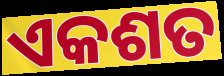
ଏକଶତ